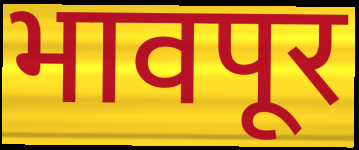
भावपूर